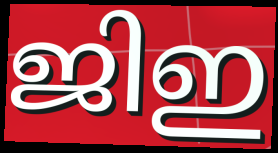
ജിഇ